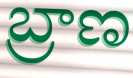
బ్రాణ